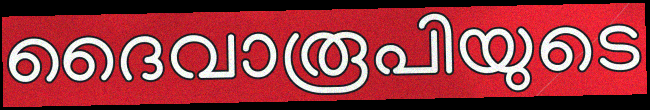
ദൈവാരൂപിയുടെ